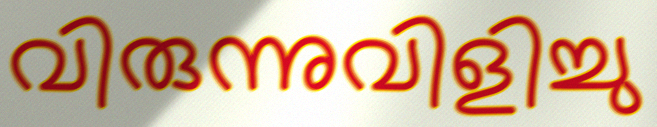
വിരുന്നുവിളിച്ചു